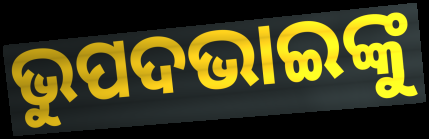
ଭୁପଦଭାଇଙ୍କୁ